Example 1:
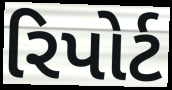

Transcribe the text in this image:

રિપોર્ટ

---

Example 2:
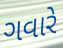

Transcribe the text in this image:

ગવારે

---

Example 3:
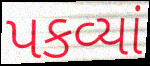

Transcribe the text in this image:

પકવ્યાં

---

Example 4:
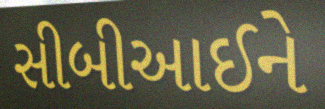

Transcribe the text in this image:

સીબીઆઈને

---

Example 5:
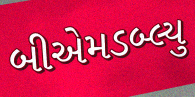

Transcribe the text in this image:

બીએમડબ્લ્યુ